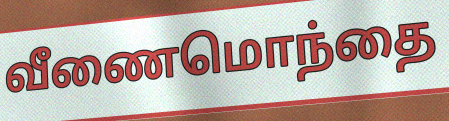
வீணைமொந்தை